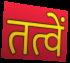
तत्वें